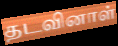
தடவினாள்